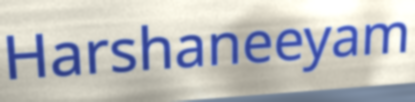
Harshaneeyam